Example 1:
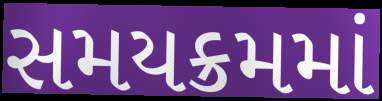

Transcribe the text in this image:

સમયક્રમમાં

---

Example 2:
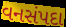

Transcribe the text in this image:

વનસંપદા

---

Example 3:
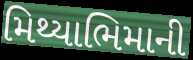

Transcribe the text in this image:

મિથ્યાભિમાની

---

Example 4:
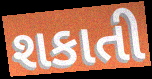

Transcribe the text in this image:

શકાતી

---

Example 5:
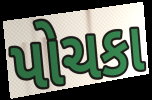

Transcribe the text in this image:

પોચકા